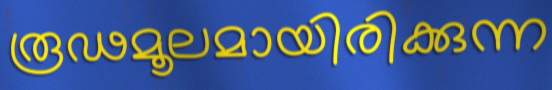
രൂഢമൂലമായിരിക്കുന്ന